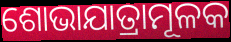
ଶୋଭାଯାତ୍ରାମୂଳକ